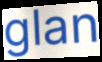
glan